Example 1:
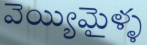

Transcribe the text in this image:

వెయ్యిమైళ్ళ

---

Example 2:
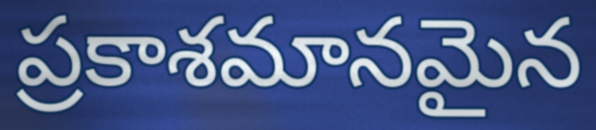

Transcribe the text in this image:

ప్రకాశమానమైన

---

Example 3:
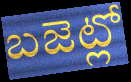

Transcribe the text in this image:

బజెట్లో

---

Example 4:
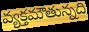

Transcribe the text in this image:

వ్యక్తమౌతున్నది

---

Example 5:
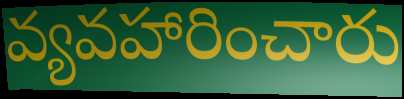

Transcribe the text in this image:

వ్యవహారించారు